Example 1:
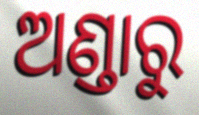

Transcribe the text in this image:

ଅଣ୍ଡାରୁ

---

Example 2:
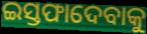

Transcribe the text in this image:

ଇସ୍ତଫାଦେବାକୁ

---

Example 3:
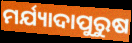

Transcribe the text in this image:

ମର୍ଯ୍ୟାଦାପୁରୁଷ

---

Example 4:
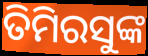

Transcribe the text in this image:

ତିମିରସୁଙ୍କ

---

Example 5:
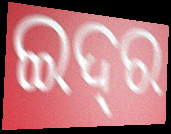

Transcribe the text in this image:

ଇଦ୍‍ର